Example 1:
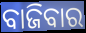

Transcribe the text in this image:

ବାଜିବାର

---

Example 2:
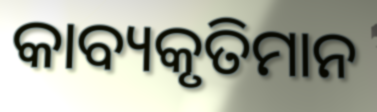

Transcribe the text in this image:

କାବ୍ୟକୃତିମାନ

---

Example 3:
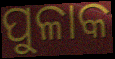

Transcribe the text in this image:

ପୁଳାକ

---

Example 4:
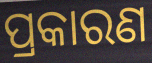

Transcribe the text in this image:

ପ୍ରକାରଣ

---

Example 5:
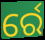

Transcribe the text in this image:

ର୍ରେ